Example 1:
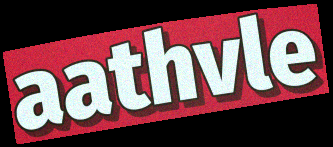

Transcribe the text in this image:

aathvle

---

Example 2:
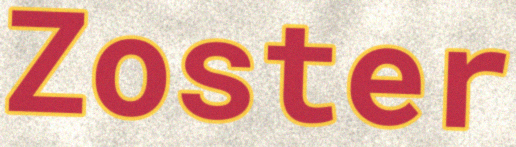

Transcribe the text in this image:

Zoster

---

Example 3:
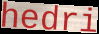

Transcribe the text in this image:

hedri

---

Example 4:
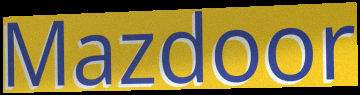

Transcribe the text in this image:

Mazdoor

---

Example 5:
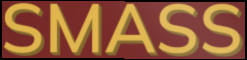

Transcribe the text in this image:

SMASS